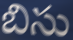
బిసు